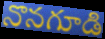
నొనగూడి